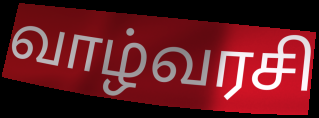
வாழ்வரசி